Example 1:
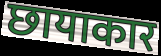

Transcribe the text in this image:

छायाकार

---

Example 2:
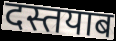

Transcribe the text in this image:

दस्तयाब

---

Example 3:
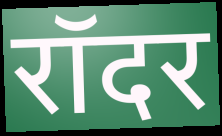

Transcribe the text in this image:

रॉदर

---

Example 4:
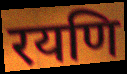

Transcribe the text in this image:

रयणि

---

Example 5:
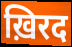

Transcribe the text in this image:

ख़िरद